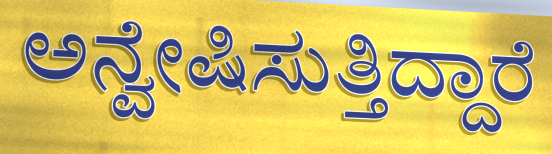
ಅನ್ವೇಷಿಸುತ್ತಿದ್ದಾರೆ